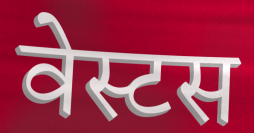
वेस्टस